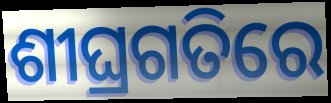
ଶୀଘ୍ରଗତିରେ